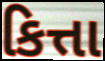
કિત્તા